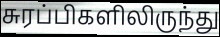
சுரப்பிகளிலிருந்து